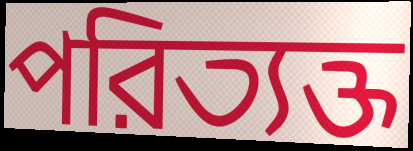
পরিত্যক্ত